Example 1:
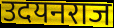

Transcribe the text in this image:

उदयनराज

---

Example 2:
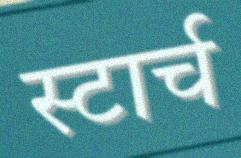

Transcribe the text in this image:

स्टार्च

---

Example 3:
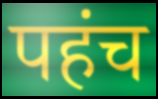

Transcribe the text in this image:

पहंच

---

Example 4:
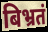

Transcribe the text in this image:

बिभ्रतं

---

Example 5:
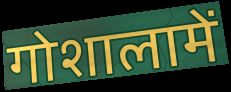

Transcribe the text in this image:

गोशालामें